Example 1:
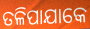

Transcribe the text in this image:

ତଳିପାଯାକେ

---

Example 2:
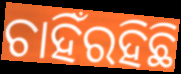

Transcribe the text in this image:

ଚାହିଁରହିଛି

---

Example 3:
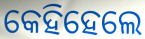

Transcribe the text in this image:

କେହିହେଲେ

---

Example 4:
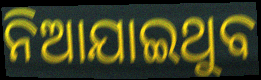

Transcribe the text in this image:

ନିଆଯାଇଥୁବ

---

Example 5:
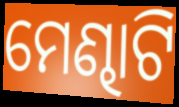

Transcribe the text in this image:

ମେଣ୍ଢାଟି